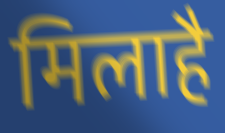
मिलाहै